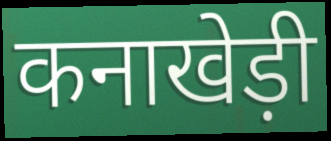
कनाखेड़ी